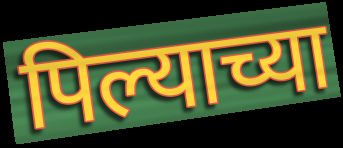
पिल्याच्या